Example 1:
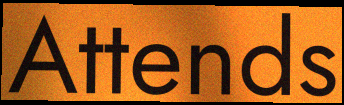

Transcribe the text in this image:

Attends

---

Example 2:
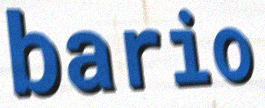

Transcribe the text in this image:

bario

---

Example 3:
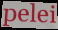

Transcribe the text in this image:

pelei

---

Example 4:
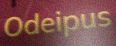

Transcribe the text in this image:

Odeipus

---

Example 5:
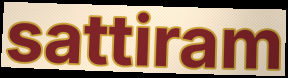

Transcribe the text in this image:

sattiram